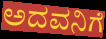
ಅದವನಿಗೆ